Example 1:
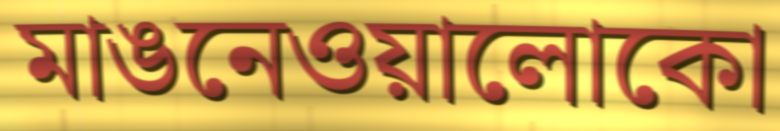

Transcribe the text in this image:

মাঙনেওয়ালোকো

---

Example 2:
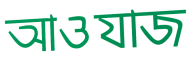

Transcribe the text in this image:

আওযাজ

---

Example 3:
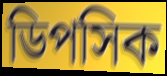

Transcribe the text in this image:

ডিপসিক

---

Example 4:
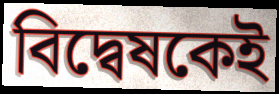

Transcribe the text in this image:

বিদ্বেষকেই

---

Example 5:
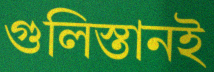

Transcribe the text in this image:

গুলিস্তানই